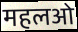
महलओ